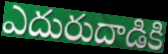
ఎదురుదాడికి